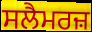
ਸਲੈਮਰਜ਼